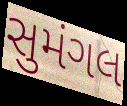
સુમંગલ